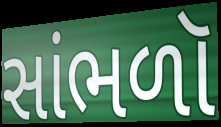
સાંભળૉ